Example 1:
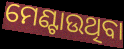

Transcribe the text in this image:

ମେଣ୍ଟାଉଥିବା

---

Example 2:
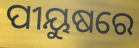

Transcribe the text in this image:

ପୀୟୁଷରେ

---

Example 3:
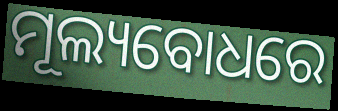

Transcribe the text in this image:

ମୂଲ୍ୟବୋଧରେ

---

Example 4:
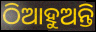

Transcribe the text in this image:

ଠିଆହୁଅନ୍ତି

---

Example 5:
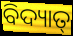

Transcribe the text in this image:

ବିଦ୍ୟାତ୍